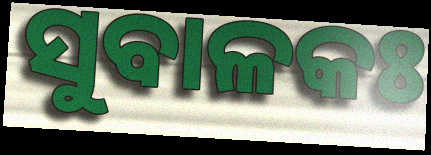
ସୁବାଳକଃ